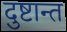
दुष्टान्त